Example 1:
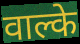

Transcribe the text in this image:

वाल्के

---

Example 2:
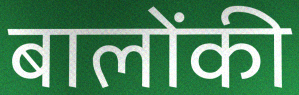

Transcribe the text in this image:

बालोंकी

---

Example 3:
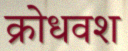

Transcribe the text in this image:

क्रोधवश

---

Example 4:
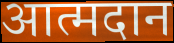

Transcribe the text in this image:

आत्मदान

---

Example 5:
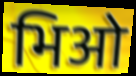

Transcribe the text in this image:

भिओ